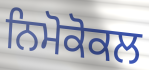
ਨਿਮੋਕੋਕਲ